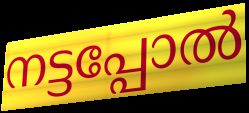
നട്ടപ്പോൽ